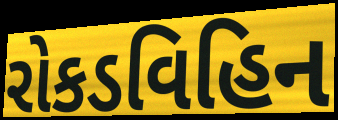
રોકડવિહિન